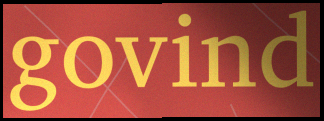
govind